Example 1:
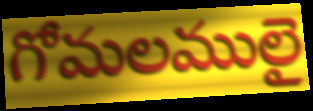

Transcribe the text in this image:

గోమలములై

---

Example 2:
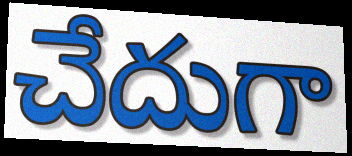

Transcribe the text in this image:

చేదుగా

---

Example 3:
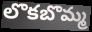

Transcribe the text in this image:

లొకబొమ్మ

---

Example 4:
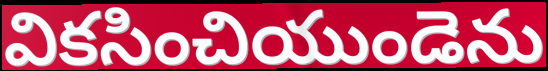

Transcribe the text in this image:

వికసించియుండెను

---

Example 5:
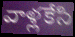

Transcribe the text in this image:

వాళ్లకేసి